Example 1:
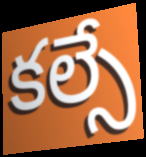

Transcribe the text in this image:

కల్సే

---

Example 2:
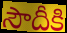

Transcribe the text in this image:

సౌదీకి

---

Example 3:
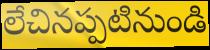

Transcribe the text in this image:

లేచినప్పటినుండి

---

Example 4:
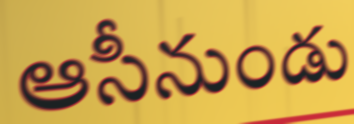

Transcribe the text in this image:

ఆసీనుండు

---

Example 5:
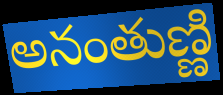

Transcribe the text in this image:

అనంతుణ్ణి